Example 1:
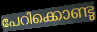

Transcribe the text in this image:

പേറിക്കൊണ്ടു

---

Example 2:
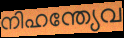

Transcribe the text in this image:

നിഹന്ത്യേവ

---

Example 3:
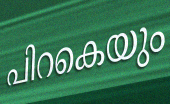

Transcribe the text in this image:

പിറകെയും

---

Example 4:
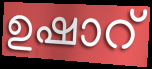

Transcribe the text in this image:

ഉഷാറ്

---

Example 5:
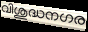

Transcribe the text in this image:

വിശുദ്ധനഗര